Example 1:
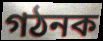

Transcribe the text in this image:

গঠনক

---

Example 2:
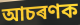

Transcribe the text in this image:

আচৰণক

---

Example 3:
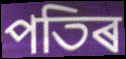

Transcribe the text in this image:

পতিৰ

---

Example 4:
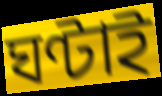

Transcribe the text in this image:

ঘণ্টাই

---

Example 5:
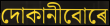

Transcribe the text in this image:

দোকানীবোৰে